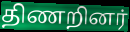
திணறினர்